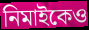
নিমাইকেও